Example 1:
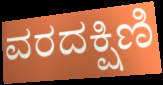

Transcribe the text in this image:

ವರದಕ್ಷಿಣಿ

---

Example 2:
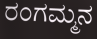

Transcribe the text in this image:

ರಂಗಮ್ಮನ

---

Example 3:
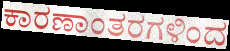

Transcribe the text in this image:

ಕಾರಣಾಂತರಗಳಿಂದ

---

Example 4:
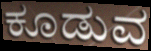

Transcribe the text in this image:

ಕೂಡುವ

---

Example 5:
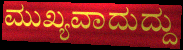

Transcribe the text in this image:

ಮುಖ್ಯವಾದುದ್ದು